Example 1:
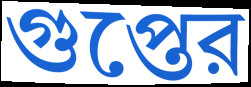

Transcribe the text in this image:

গুপ্তের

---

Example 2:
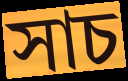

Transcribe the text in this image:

সাচ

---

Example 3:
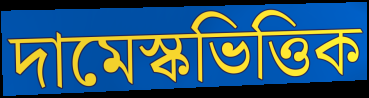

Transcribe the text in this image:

দামেস্কভিত্তিক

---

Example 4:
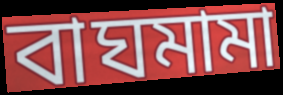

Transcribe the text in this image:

বাঘমামা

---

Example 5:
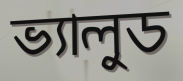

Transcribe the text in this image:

ভ্যালুড